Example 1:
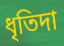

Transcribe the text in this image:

ধৃতিদা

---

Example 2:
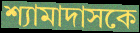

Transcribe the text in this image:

শ্যামাদাসকে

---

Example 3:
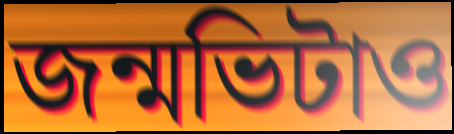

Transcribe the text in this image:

জন্মভিটাও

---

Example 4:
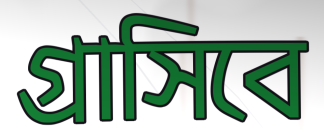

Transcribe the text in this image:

গ্রাসিবে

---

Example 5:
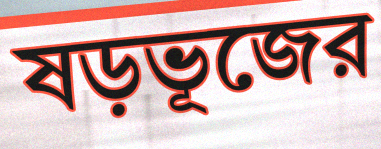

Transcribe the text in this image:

ষড়ভূজের